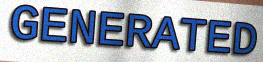
GENERATED